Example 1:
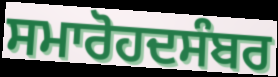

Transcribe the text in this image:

ਸਮਾਰੋਹਦਸੰਬਰ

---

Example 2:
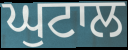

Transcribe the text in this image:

ਘੁਟਾਲ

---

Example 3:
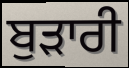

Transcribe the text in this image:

ਬੁੜਾਰੀ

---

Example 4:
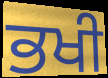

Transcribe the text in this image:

ਭਖੀ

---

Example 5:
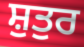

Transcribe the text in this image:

ਸ਼ੁਤੁਰ